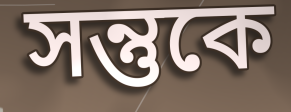
সন্তুকে